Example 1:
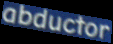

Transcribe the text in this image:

abductor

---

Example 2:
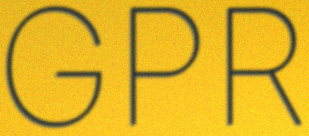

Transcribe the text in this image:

GPR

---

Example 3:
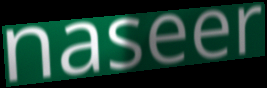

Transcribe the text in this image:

naseer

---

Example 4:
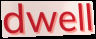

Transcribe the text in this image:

dwell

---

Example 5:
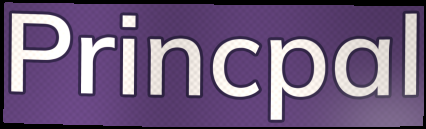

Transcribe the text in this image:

Princpal